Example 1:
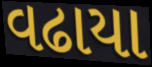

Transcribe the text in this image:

વઢાયા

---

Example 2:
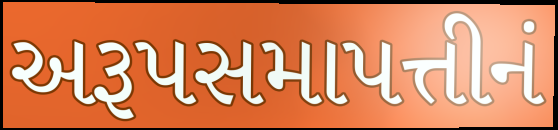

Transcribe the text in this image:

અરૂપસમાપત્તીનં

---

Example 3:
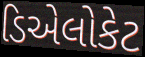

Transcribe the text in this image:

ડિએલોકેટ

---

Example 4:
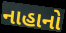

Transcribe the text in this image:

નાહાનો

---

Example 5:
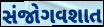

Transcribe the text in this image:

સંજોગવશાત